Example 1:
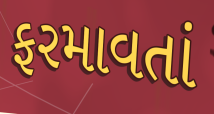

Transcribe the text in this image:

ફરમાવતાં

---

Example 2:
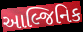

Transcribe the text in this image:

આલ્જિનિક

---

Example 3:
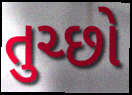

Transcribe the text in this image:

તુચ્છો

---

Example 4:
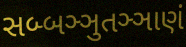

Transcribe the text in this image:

સબ્બઞ્ઞુતઞ્ઞાણં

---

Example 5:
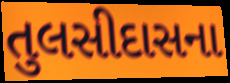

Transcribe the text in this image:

તુલસીદાસના